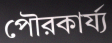
পৌরকার্য্য